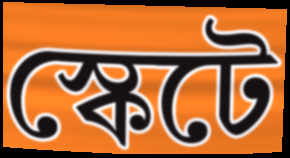
স্কেটে